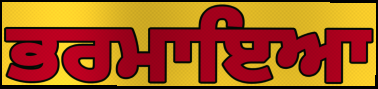
ਭਰਮਾਇਆ